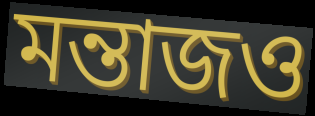
মন্তাজও